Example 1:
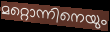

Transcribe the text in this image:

മറ്റൊന്നിനെയും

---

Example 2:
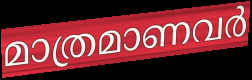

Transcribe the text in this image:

മാത്രമാണവർ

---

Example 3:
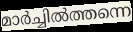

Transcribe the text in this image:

മാർച്ചിൽത്തന്നെ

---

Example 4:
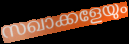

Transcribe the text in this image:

സഖാക്കളേയും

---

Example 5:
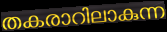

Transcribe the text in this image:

തകരാറിലാകുന്ന